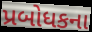
પ્રબોધકના